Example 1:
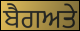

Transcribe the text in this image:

ਬੈਗਅਤੇ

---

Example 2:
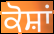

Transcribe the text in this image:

ਕੋਸ਼ਾਂ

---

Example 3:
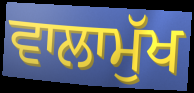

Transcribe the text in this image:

ਵਾਲਾਮੁੱਖ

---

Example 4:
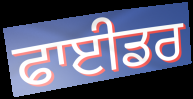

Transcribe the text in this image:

ਫਾਈਡਰ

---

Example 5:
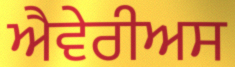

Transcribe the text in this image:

ਐਵੇਰੀਅਸ